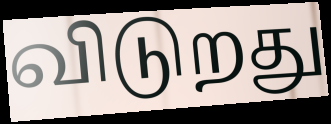
விடுறது